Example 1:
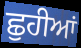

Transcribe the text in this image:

ਛੁਹੀਆਂ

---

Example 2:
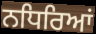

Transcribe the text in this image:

ਨਧਿਰਿਆਂ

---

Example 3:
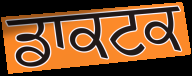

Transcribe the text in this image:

ਡਾਕਟਕ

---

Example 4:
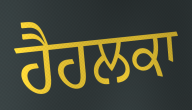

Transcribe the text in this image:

ਹੈਹਲਕਾ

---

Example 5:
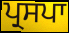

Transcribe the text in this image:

ਪ੍ਰਸਪਾ